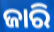
ଜାରି